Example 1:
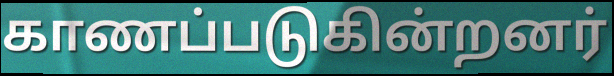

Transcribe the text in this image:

காணப்படுகின்றனர்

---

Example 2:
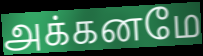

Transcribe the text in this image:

அக்கனமே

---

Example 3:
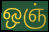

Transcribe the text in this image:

ஒஞ்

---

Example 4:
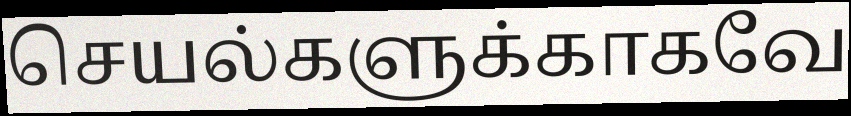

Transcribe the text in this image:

செயல்களுக்காகவே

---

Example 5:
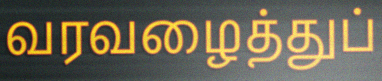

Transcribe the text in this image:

வரவழைத்துப்